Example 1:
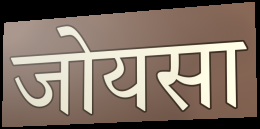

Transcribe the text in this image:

जोयसा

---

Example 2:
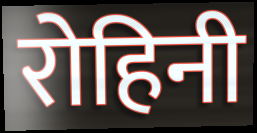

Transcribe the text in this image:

रोहिनी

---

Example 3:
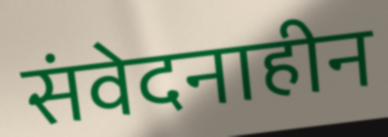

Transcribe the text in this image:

संवेदनाहीन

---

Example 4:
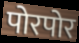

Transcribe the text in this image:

पोरपोर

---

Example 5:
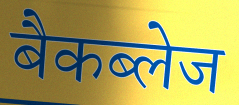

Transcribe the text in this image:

बैकब्लेज